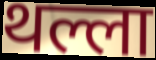
थल्ला